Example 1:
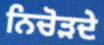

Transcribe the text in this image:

ਨਿਚੋੜਦੇ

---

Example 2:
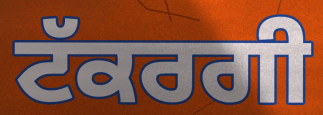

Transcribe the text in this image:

ਟੱਕਰਗੀ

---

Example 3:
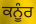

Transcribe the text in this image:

ਕਨੂੰਰ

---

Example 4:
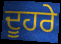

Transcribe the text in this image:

ਦੂਹਰੇ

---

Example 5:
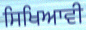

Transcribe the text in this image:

ਸਿਖਿਆਵੀ